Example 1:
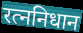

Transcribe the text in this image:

रत्ननिधान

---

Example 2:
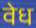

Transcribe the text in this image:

वेध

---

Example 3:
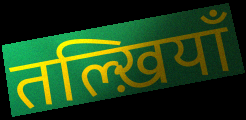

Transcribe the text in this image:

तल्ख़ियाँ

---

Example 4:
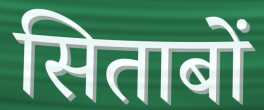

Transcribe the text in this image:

सिताबों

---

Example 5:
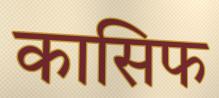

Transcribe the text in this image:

कासिफ